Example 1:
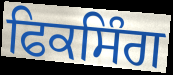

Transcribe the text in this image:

ਫਿਕਸਿੰਗ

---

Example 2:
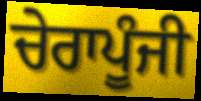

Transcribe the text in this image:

ਚੇਰਾਪੂੰਜੀ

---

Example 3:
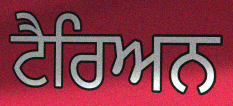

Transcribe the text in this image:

ਟੈਰਿਅਨ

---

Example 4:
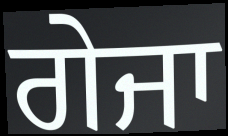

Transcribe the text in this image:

ਗੇਜਾ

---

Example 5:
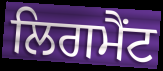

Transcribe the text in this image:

ਲਿਗਮੈਂਟ